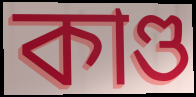
কাণ্ড